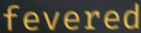
fevered